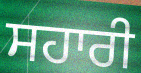
ਸਹਾਰੀ